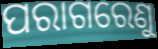
ପରାଗରେଣୁ